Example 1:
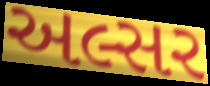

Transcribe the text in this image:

અલ્સર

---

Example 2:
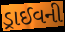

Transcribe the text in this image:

ડ્રાઈવની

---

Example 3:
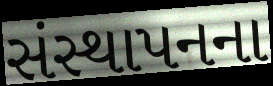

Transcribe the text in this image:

સંસ્થાપનના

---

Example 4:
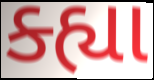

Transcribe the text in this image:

ક્હ્યા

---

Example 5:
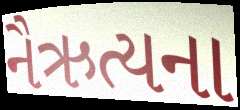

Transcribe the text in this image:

નૈઋત્યના